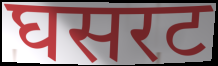
घसरट